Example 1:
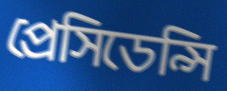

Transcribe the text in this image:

প্রেসিডেন্সি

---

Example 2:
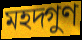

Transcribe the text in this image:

মহদ্গুণ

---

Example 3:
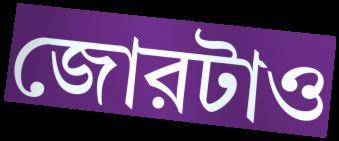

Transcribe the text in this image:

জোরটাও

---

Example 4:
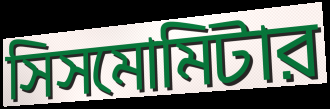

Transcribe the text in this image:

সিসমোমিটার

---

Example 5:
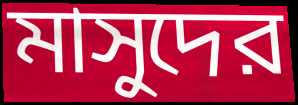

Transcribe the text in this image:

মাসুদের